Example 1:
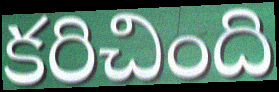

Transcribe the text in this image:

కరిచింది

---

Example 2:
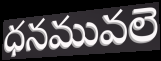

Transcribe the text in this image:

ధనమువలె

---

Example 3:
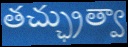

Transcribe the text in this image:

తచ్ఛ్రుత్వా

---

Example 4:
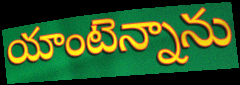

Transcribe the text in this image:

యాంటెన్నాను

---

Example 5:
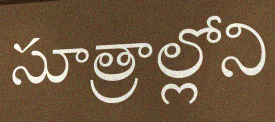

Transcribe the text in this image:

సూత్రాల్లోని